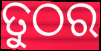
ତୁଠର